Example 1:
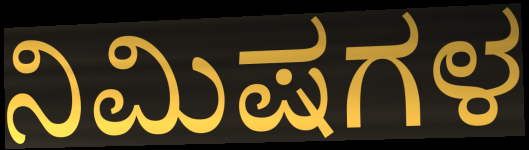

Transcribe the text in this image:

ನಿಮಿಷಗಳ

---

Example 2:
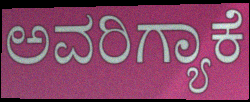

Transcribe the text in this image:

ಅವರಿಗ್ಯಾಕೆ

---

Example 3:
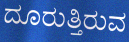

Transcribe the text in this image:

ದೂರುತ್ತಿರುವ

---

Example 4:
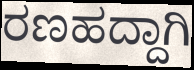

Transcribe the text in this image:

ರಣಹದ್ದಾಗಿ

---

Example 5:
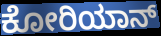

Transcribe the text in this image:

ಕೋರಿಯಾನ್